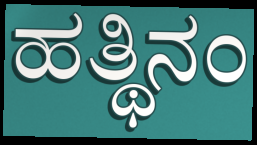
ಹತ್ಥಿನಂ